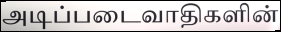
அடிப்படைவாதிகளின்